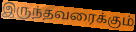
இருந்தவரைக்கும்